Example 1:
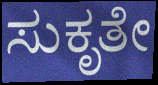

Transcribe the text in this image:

ಸುಕೃತೇ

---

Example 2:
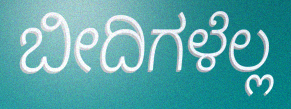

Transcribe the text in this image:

ಬೀದಿಗಳೆಲ್ಲ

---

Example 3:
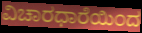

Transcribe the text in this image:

ವಿಚಾರಧಾರೆಯಿಂದ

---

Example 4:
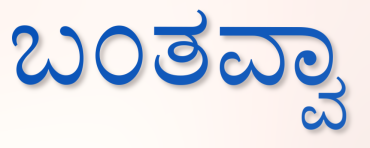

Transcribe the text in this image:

ಬಂತವ್ವಾ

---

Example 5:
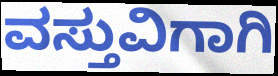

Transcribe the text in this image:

ವಸ್ತುವಿಗಾಗಿ